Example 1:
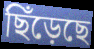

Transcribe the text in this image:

ছিঁড়েছে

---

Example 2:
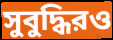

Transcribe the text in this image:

সুবুদ্ধিরও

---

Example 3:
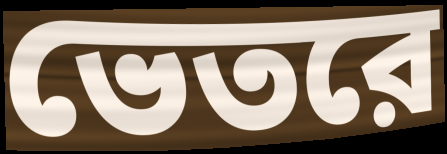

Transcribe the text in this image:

ভেতরে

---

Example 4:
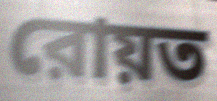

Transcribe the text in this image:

রোয়ত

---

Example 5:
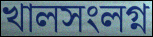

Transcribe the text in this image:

খালসংলগ্ন